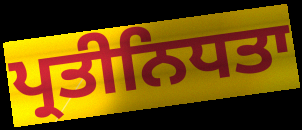
ਪ੍ਰਤੀਨਿਧਤਾ